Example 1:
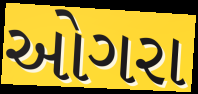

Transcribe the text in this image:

ઓગરા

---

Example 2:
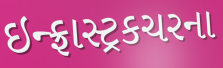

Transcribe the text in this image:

ઇન્ફ્રાસ્ટ્રકચરના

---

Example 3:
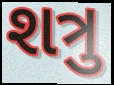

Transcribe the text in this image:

શત્રુ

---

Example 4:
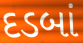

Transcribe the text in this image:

દડબાં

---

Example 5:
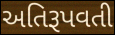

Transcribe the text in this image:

અતિરૂપવતી